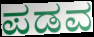
ಪಡವ